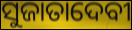
ସୁଜାତାଦେବୀ